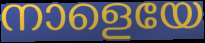
നാളെയേ